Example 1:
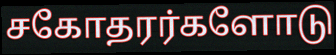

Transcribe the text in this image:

சகோதரர்களோடு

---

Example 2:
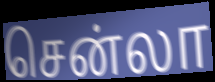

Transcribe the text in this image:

சென்லா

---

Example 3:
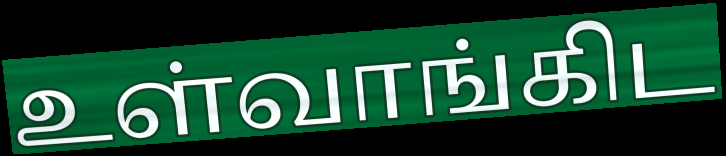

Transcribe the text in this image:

உள்வாங்கிட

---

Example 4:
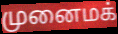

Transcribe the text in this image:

முனைமக்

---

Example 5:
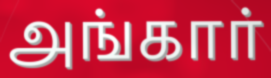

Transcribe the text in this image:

அங்கார்